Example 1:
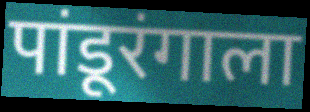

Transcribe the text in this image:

पांडूरंगाला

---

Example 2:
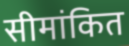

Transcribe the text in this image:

सीमांकित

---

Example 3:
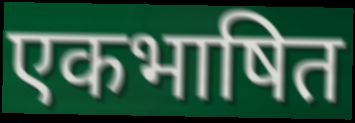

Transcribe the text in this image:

एकभाषित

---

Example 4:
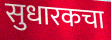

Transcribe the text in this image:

सुधारकचा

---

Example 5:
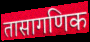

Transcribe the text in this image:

तासागणिक